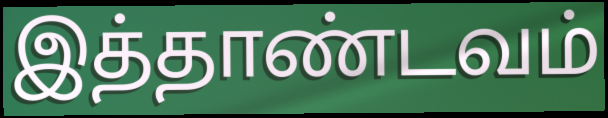
இத்தாண்டவம்